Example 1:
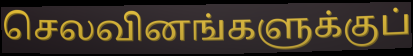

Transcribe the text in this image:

செலவினங்களுக்குப்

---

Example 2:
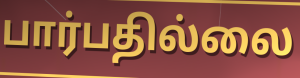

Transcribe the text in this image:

பார்பதில்லை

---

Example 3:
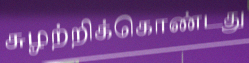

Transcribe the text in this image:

சுழற்றிக்கொண்டது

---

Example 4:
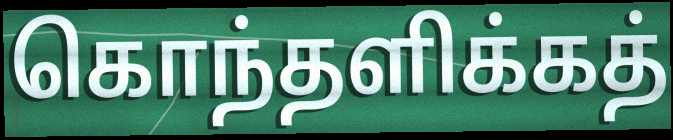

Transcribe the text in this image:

கொந்தளிக்கத்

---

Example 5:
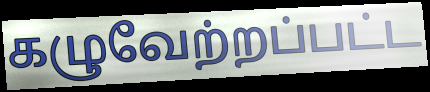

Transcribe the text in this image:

கழுவேற்றப்பட்ட